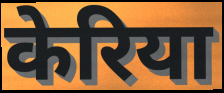
केरिया